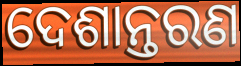
ଦେଶାନ୍ତରଣ